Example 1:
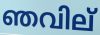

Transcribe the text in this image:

ഞവില്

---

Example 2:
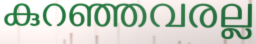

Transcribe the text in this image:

കുറഞ്ഞവരല്ല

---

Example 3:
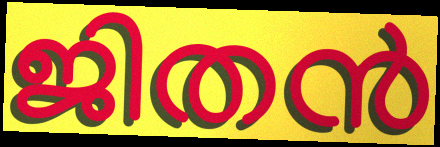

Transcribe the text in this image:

ജിതൻ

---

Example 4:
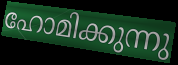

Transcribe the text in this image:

ഹോമിക്കുന്നു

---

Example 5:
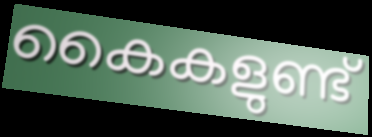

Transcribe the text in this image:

കൈകളുണ്ട്